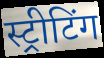
स्ट्रीटिंग